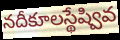
నదీకూలస్థేష్వివ